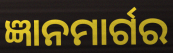
ଜ୍ଞାନମାର୍ଗର